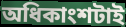
অধিকাংশটাই